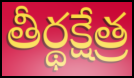
తీర్థక్షేత్ర